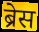
ब्रेस